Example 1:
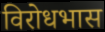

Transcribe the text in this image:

विरोधभास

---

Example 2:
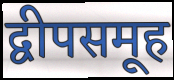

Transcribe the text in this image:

द्वीपसमूह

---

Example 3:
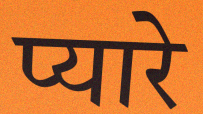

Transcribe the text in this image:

प्यारे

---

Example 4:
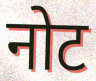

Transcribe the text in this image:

नोट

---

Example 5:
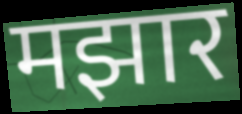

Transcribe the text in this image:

मझार